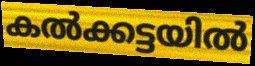
കൽക്കട്ടയിൽ